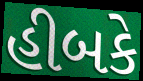
હીબકે